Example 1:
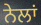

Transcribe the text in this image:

ਨੇਲਾਂ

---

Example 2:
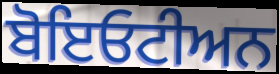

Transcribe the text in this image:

ਬੋਇਓਟੀਅਨ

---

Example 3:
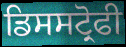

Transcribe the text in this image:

ਡਿਸਸਟ੍ਰੋਫੀ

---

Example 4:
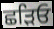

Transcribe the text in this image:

ਛੜਿਓ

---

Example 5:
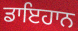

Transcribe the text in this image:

ਡਾਇਹਾਨ